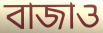
বাজাও